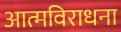
आत्मविराधना